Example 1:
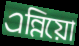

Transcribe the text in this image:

এন্নিয়ো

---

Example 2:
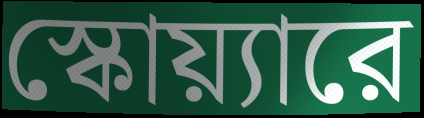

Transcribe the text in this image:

স্কোয়্যারে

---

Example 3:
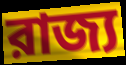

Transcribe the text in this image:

রাজ্য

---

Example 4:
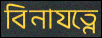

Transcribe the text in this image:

বিনাযত্নে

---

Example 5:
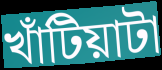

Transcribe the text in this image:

খাঁটিয়াটা